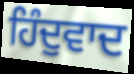
ਹਿੰਦੁਵਾਦ